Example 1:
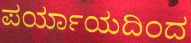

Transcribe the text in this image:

ಪರ್ಯಾಯದಿಂದ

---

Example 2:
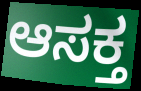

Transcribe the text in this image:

ಆಸಕ್ತ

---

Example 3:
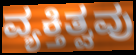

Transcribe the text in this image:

ವ್ಯಕ್ತಿತ್ವವು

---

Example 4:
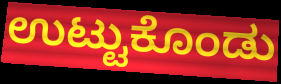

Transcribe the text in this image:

ಉಟ್ಟುಕೊಂಡು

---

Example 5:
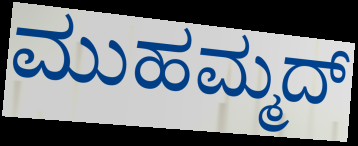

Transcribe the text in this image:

ಮುಹಮ್ಮದ್